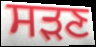
ਸੜਣ